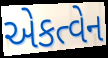
એકત્વેન